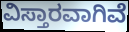
ವಿಸ್ತಾರವಾಗಿವೆ